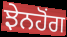
ਝੇਨਹੋਂਗ